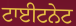
ਟਾਈਟਨੇਟ